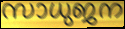
സാധുജന